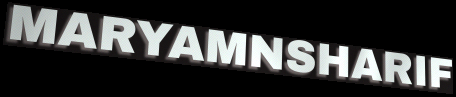
MARYAMNSHARIF